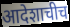
आदेशाचीच